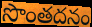
సొంతదనం